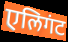
एलिगंट